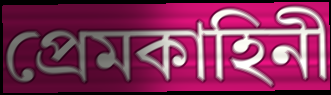
প্রেমকাহিনী